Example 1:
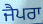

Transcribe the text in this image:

ਜੈਪਰਾ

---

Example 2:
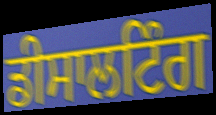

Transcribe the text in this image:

ਡੀਸਾਲਟਿੰਗ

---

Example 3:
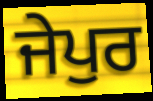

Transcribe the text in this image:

ਜੇਪੁਰ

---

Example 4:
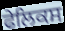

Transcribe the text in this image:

ਫੇਲਿਕਸ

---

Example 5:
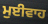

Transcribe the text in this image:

ਮੁਈਵਾਹ